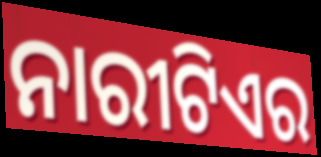
ନାରୀଟିଏର